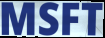
MSFT